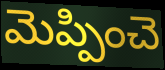
మెప్పించె